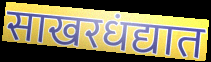
साखरधंद्यात